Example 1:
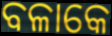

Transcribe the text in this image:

ବଳାକେ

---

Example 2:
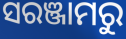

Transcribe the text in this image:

ସରଞ୍ଜାମରୁ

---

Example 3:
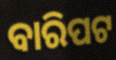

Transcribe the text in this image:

ବାରିପଟ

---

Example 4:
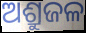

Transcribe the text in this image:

ଅଶ୍ରୁଜଳ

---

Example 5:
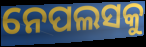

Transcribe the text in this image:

ନେପଲସକୁ